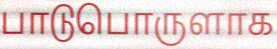
பாடுபொருளாக